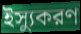
ইস্যুকরণ